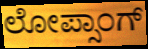
ಲೋಪ್ಸಾಂಗ್